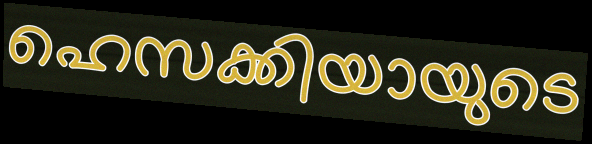
ഹെസക്കിയായുടെ